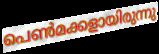
പെൺമക്കളായിരുന്നു